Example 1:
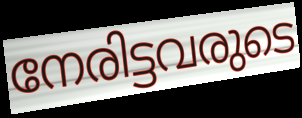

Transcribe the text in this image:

നേരിട്ടവരുടെ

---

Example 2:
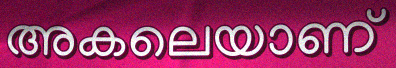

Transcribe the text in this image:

അകലെയാണ്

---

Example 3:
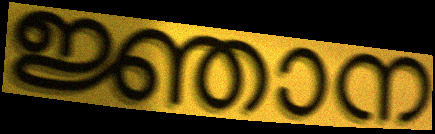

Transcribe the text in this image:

ജ്ഞാന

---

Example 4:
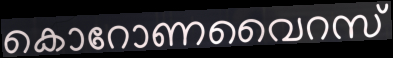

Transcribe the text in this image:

കൊറോണവൈറസ്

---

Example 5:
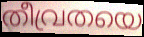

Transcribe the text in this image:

തീവ്രതയെ